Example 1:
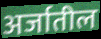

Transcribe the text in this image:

अर्जातील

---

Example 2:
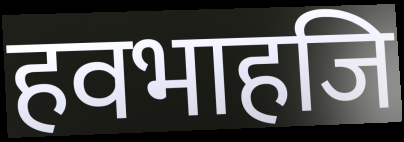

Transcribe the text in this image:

हवभाहजि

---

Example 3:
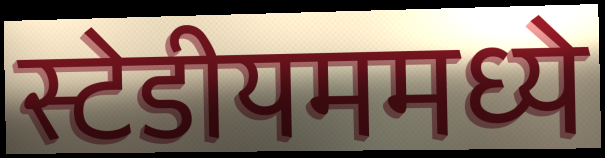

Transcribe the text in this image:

स्टेडीयममध्ये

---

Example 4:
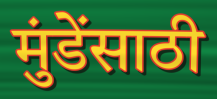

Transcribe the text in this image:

मुंडेंसाठी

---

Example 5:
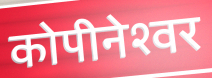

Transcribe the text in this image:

कोपीनेश्वर